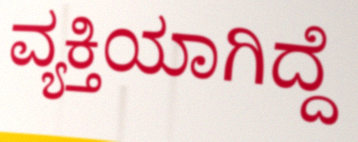
ವ್ಯಕ್ತಿಯಾಗಿದ್ದೆ